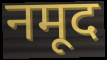
नमूद